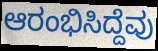
ಆರಂಭಿಸಿದ್ದೆವು